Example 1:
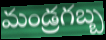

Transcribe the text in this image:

మండ్రగబ్బ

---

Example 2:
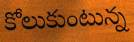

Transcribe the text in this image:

కోలుకుంటున్న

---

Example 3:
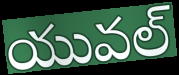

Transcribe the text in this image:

యువల్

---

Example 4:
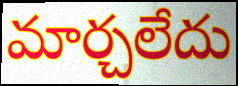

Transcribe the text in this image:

మార్చలేదు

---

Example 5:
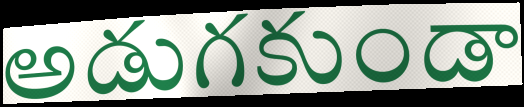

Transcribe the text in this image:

అడుగకుండా